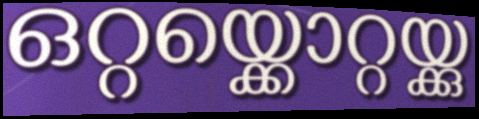
ഒറ്റയ്ക്കൊറ്റയ്ക്കു